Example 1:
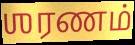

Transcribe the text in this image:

ஶரணம்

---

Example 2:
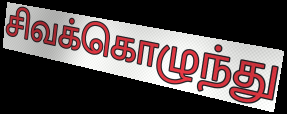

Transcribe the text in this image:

சிவக்கொழுந்து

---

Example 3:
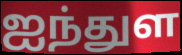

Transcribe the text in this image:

ஐந்துள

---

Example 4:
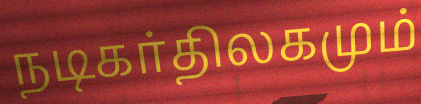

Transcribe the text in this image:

நடிகர்திலகமும்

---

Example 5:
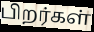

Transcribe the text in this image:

பிறர்கள்